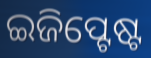
ଇଜିପ୍ଟେଷ୍ଟ